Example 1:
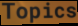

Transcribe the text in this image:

Topics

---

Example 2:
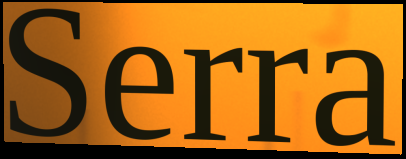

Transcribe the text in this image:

Serra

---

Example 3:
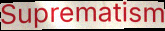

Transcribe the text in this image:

Suprematism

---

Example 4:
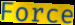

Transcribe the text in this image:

Force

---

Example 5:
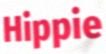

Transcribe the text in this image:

Hippie